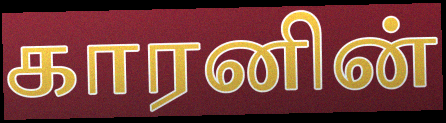
காரனின்